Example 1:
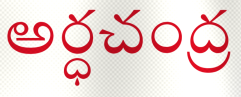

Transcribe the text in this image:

అర్ధచంద్ర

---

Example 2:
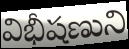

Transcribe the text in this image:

విభీషణుని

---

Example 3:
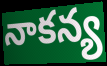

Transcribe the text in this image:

నాకన్య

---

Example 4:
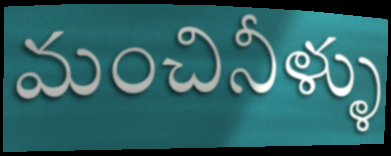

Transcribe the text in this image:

మంచినీళ్ళు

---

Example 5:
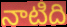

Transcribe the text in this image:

నాటిది